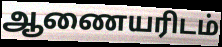
ஆணையரிடம்